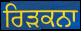
ਰਿੜਕਨਾ